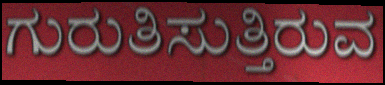
ಗುರುತಿಸುತ್ತಿರುವ